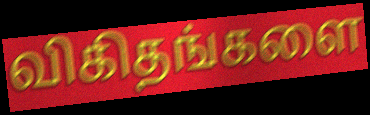
விகிதங்களை